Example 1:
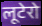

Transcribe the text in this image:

लूटेरो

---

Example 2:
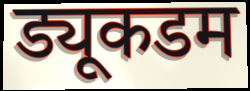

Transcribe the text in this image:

ड्यूकडम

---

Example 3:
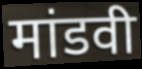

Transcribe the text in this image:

मांडवी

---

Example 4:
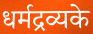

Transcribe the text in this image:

धर्मद्रव्यके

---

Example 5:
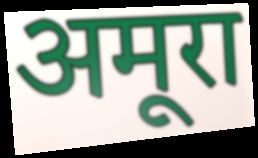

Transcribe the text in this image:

अमूरा